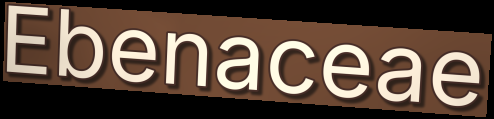
Ebenaceae